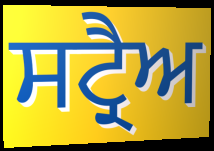
ਸਟ੍ਰੈਅ